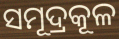
ସମୂଦ୍ରକୂଳ